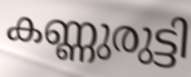
കണ്ണുരുട്ടി